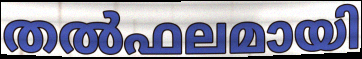
തൽഫലമായി